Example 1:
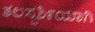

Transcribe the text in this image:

ತಲಸ್ಪರ್ಶಿಯಾಗಿ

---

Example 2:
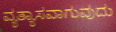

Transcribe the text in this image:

ವ್ಯತ್ಯಾಸವಾಗುವುದು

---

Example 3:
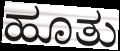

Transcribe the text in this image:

ಹೂತು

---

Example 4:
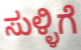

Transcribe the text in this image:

ಸುಳ್ಳಿಗೆ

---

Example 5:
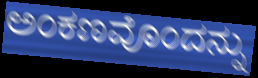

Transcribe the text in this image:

ಅಂಕಣವೊಂದನ್ನು